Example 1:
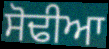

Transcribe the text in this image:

ਸੋਢੀਆ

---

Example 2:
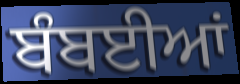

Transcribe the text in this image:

ਬੰਬਈਆਂ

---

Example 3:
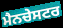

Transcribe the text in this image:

ਮੈਨਚੇਸਟਰ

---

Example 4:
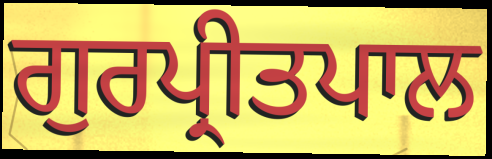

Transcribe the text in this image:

ਗੁਰਪ੍ਰੀਤਪਾਲ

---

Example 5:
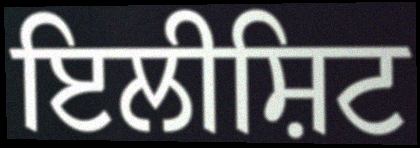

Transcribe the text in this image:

ਇਲੀਸ਼ਿਟ